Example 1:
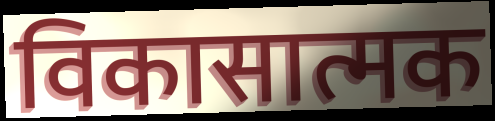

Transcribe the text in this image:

विकासात्मक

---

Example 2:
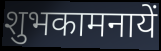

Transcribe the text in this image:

शुभकामनायें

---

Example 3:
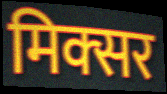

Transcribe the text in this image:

मिक्‍सर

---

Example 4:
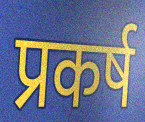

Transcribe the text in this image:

प्रकर्ष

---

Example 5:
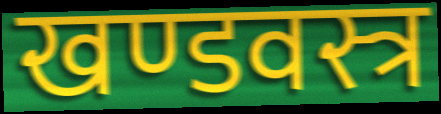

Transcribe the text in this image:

खण्डवस्त्र